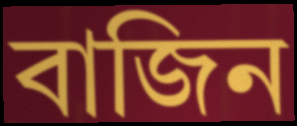
বাজিন